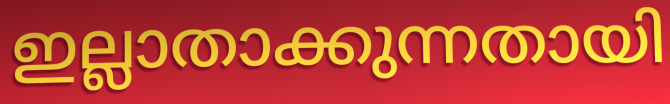
ഇല്ലാതാക്കുന്നതായി